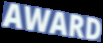
AWARD